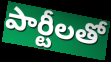
పార్టీలతో